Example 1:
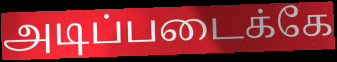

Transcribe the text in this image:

அடிப்படைக்கே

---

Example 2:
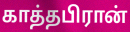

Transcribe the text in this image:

காத்தபிரான்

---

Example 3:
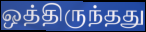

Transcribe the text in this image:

ஒத்திருந்தது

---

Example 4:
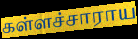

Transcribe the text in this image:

கள்ளச்சாராய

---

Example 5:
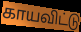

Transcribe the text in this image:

காயவிட்டு